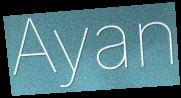
Ayan